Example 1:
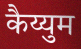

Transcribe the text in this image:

कैय्युम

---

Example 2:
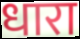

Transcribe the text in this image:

धारा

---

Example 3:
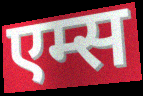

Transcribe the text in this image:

एम्स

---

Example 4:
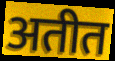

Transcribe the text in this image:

अतीत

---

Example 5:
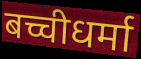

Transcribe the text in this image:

बच्चीधर्मा